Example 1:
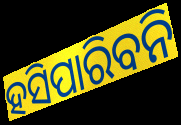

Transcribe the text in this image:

ହସିପାରିବନି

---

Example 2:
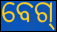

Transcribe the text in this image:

ବେଗ୍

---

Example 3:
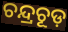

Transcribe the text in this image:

ଚନ୍ଦ୍ରଚୂଡ଼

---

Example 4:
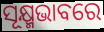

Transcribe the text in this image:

ସୂକ୍ଷ୍ମଭାବରେ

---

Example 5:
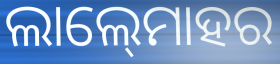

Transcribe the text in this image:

ଲାଲ୍‍ମୋହର